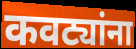
कवट्यांना